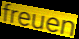
freuen